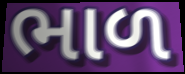
ભાળ